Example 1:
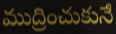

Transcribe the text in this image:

ముద్రించుకునే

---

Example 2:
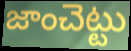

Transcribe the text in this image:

జాంచెట్టు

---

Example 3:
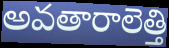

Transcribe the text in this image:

అవతారాలెత్తి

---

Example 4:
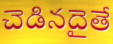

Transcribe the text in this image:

చెడినదైతే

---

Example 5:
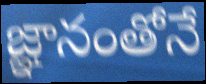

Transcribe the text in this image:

జ్ఞానంతోనే